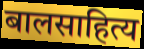
बालसाहित्य